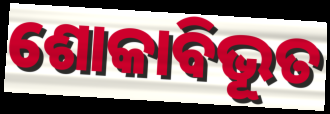
ଶୋକାବିଭୂତ